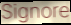
Signore